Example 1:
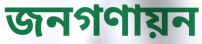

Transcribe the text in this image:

জনগণায়ন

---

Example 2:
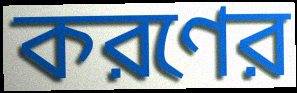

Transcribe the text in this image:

করণের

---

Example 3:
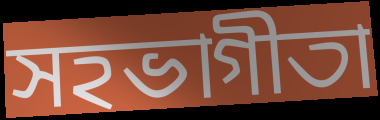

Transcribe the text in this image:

সহভাগীতা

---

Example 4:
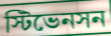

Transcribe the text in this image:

স্টিভেনসন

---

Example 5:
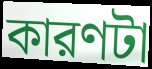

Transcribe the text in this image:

কারণটা